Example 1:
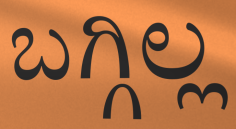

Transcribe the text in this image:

ಬಗ್ಗಿಲ್ಲ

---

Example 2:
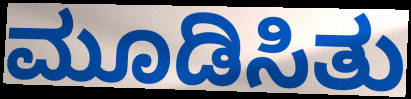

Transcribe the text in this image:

ಮೂಡಿಸಿತು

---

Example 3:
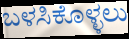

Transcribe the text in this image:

ಬಳಸಿಕೊಳ್ಳಲು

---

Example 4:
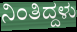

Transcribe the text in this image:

ನಿಂತಿದ್ದಳು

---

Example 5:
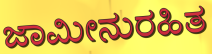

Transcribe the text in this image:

ಜಾಮೀನುರಹಿತ